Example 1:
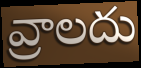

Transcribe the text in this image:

వ్రాలదు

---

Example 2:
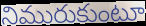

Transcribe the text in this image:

నిమురుకుంటూ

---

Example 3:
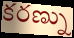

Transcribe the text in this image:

కరణ్ను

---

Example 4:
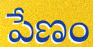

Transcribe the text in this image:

పేణం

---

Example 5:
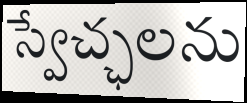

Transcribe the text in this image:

స్వేచ్ఛలను